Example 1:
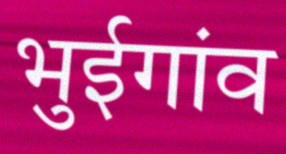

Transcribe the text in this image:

भुईगांव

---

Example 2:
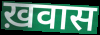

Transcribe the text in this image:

ख़वास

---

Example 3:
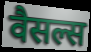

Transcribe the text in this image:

वैसल्स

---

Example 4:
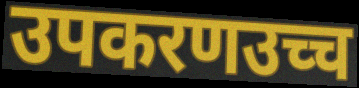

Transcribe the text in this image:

उपकरणउच्च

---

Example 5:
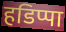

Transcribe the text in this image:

हडिप्पा